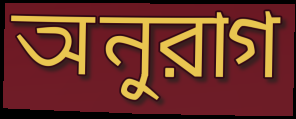
অনুরাগ